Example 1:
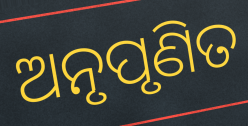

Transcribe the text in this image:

ଅନୃପୃଣିତ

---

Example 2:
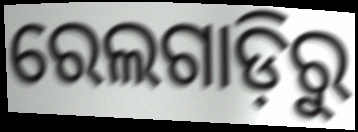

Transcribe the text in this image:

ରେଲଗାଡ଼ିରୁ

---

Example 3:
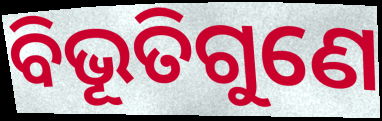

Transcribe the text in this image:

ବିଭୂତିଗୁଣେ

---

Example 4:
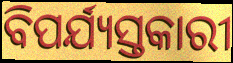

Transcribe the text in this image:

ବିପର୍ଯ୍ୟସ୍ତକାରୀ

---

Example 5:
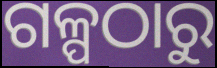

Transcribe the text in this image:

ଗଳ୍ପଠାରୁ